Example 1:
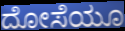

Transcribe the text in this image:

ದೋಸೆಯೂ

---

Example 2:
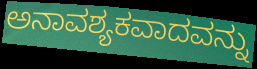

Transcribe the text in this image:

ಅನಾವಶ್ಯಕವಾದವನ್ನು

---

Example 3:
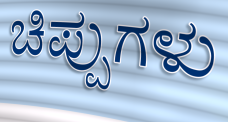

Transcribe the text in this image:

ಚಿಪ್ಪುಗಳು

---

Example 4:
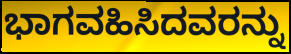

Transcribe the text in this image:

ಭಾಗವಹಿಸಿದವರನ್ನು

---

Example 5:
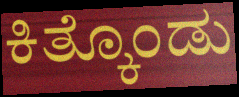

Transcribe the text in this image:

ಕಿತ್ಕೊಂಡು